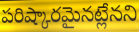
పరిష్కారమైనట్లేనని